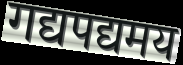
गद्यपद्यमय